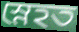
স্নেহত